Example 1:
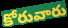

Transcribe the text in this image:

కోరువారు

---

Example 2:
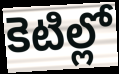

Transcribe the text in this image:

కెటిల్లో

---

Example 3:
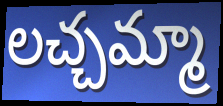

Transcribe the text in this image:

లచ్చమ్మా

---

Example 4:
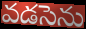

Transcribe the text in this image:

వడసెను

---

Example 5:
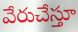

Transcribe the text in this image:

వేరుచేస్తూ